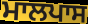
ਮਾਲਪਾਸ